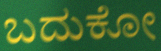
ಬದುಕೋ